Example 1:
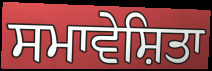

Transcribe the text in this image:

ਸਮਾਵੇਸ਼ਿਤਾ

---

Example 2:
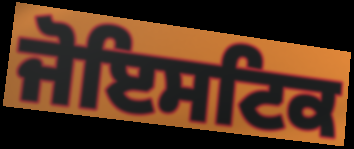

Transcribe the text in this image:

ਜੋਇਸਟਿਕ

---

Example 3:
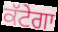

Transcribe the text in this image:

ਕੱਟੇਗਾ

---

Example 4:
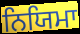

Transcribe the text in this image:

ਨਿਯਿਮਾ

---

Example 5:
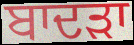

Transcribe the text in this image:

ਬਾਦੜਾ